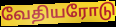
வேதியரோடு